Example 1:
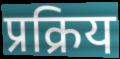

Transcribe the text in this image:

प्रक्रिय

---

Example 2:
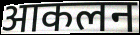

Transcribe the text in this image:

आकलन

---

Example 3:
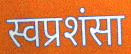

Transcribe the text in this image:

स्वप्रशंसा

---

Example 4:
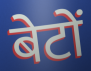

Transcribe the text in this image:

बेटों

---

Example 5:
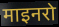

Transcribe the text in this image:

माइनरो